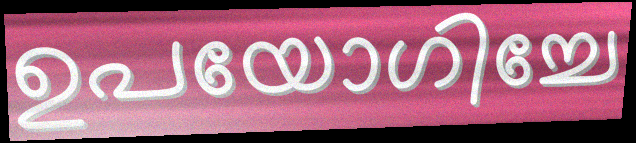
ഉപയോഗിച്ചേ